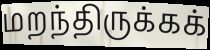
மறந்திருக்கக்